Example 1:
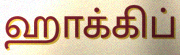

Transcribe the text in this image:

ஹாக்கிப்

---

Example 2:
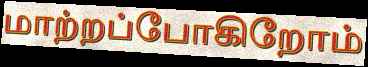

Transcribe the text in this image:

மாற்றப்போகிறோம்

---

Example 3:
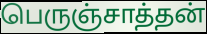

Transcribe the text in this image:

பெருஞ்சாத்தன்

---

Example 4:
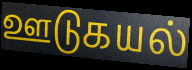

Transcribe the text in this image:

ஊடுகயல்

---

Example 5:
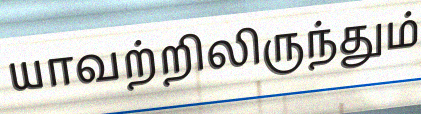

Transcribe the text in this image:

யாவற்றிலிருந்தும்